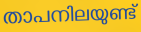
താപനിലയുണ്ട്